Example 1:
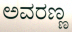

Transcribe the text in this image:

ಅವರಣ್ಣ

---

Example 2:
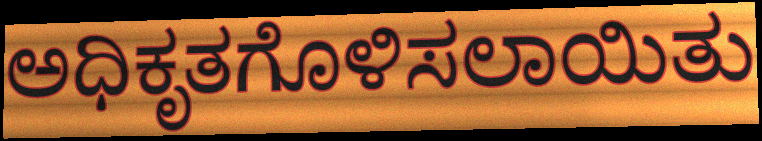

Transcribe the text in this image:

ಅಧಿಕೃತಗೊಳಿಸಲಾಯಿತು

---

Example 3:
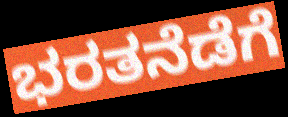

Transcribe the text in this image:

ಭರತನೆಡೆಗೆ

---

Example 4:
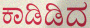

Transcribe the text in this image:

ಕಾಡಿಡಿದ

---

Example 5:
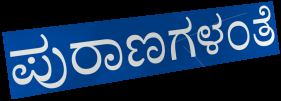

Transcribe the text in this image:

ಪುರಾಣಗಳಂತೆ